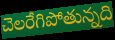
చెలరేగిపోతున్నది